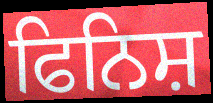
ਫਿਨਿਸ਼